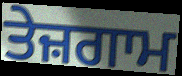
ਤੇਜ਼ਗਾਮ